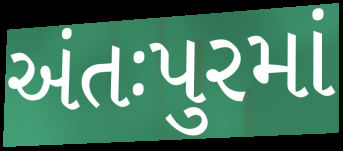
અંતઃપુરમાં